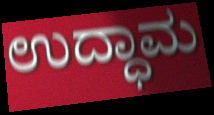
ಉದ್ಧಾಮ